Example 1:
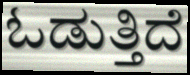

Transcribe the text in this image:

ಓಡುತ್ತಿದೆ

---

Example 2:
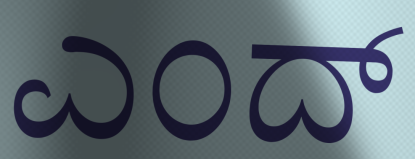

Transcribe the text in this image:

ಎಂದ್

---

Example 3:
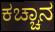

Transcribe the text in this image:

ಕಚ್ಚಾನ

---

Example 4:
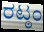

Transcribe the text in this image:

ರಟ್ಠಂ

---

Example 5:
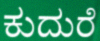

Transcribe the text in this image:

ಕುದುರೆ